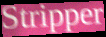
Stripper